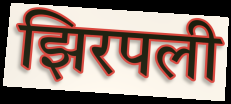
झिरपली